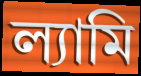
ল্যামি